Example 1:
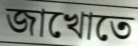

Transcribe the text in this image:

জাখোতে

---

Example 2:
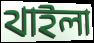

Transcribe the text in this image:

থাইলা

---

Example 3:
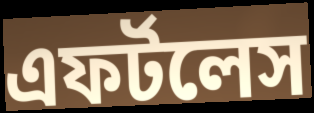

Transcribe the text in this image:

এফর্টলেস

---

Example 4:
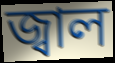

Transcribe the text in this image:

জ্বাল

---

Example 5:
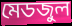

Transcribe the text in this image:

মেডজুল